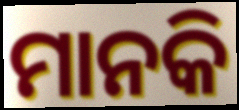
ମାନକି